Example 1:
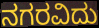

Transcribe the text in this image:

ನಗರವಿದು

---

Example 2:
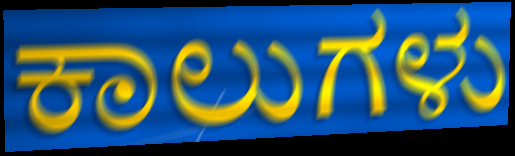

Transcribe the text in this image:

ಕಾಲುಗಳು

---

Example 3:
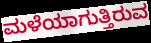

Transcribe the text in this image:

ಮಳೆಯಾಗುತ್ತಿರುವ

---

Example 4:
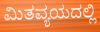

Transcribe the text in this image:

ಮಿತವ್ಯಯದಲ್ಲಿ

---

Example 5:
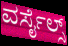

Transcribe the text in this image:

ವರ್ಸೈಲ್ಸ್